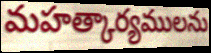
మహత్కార్యములను